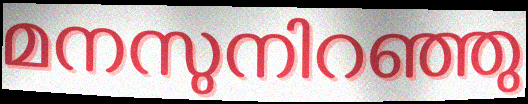
മനസുനിറഞ്ഞു